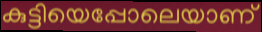
കുട്ടിയെപ്പോലെയാണ്